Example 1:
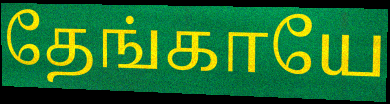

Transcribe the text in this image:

தேங்காயே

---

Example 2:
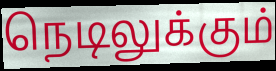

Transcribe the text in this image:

நெடிலுக்கும்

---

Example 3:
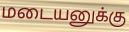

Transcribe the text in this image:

மடையனுக்கு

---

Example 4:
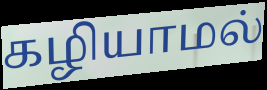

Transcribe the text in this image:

கழியாமல்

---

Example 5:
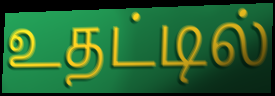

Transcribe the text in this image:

உதட்டில்